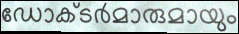
ഡോക്ടർമാരുമായും